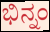
ಭಿನ್ನಂ